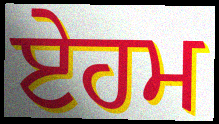
ਏਹਮ